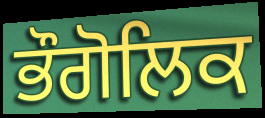
ਭੌਗੋਲਿਕ